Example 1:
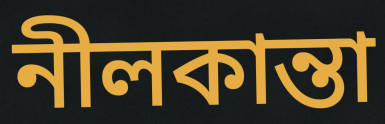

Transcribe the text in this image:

নীলকান্তা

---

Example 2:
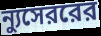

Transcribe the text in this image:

ন্যুসেররের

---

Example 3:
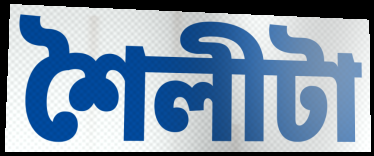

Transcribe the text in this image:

শৈলীটা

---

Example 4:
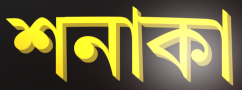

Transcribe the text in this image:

শনাকা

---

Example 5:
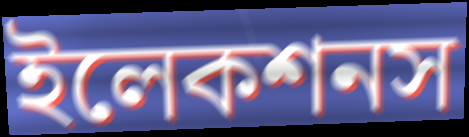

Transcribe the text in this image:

ইলেকশনস